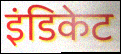
इंडिकेट